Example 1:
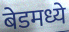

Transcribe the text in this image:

बेडमध्ये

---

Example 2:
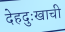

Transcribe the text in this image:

देहदुःखाची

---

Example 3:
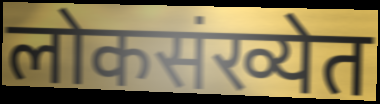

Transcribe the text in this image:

लोकसंख्येत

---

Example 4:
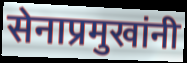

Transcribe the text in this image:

सेनाप्रमुखांनी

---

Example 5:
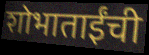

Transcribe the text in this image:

शोभाताईंची